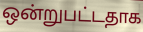
ஒன்றுபட்டதாக